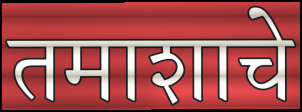
तमाशाचे